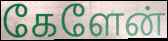
கேளேன்